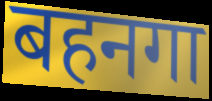
बहनगा